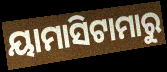
ୟାମାସିଟାମାରୁ